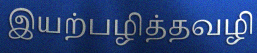
இயற்பழித்தவழி